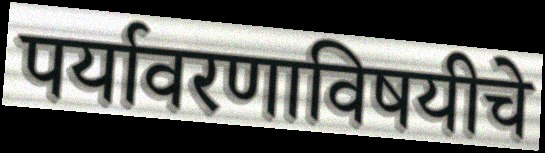
पर्यावरणाविषयीचे